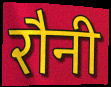
रौनी